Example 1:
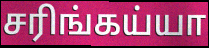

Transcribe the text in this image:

சரிங்கய்யா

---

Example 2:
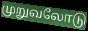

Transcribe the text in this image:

முறுவலோடு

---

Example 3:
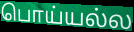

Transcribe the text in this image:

பொய்யல்ல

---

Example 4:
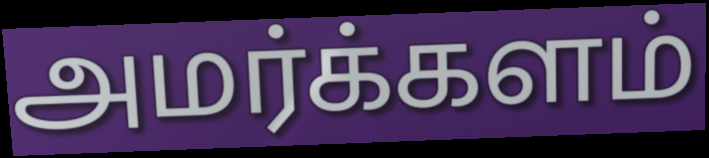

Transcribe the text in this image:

அமர்க்களம்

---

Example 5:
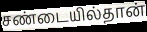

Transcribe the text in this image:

சண்டையில்தான்